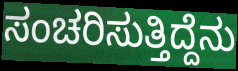
ಸಂಚರಿಸುತ್ತಿದ್ದೆನು